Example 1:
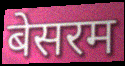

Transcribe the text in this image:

बेसरम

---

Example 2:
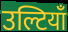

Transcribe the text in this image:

उल्टियाँ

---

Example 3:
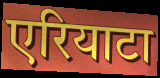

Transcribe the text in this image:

एरियाटा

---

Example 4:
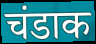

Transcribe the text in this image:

चंडाक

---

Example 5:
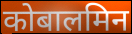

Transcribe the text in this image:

कोबालमिन